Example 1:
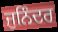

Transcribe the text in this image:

ਜੁਨਿੰਦਰ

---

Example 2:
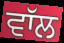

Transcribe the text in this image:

ਵਾੱਲ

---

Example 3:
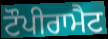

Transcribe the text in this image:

ਟੌਪੀਰਾਮੈਟ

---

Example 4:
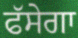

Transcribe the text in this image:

ਫੱਸੇਗਾ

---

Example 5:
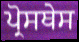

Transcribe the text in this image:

ਪ੍ਰੋਸਥੇਸ